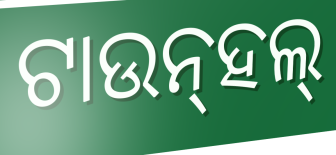
ଟାଉନ୍‌ହଲ୍